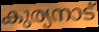
കുര്യനാട്